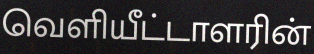
வெளியீட்டாளரின்